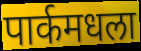
पार्कमधला